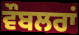
ਵੌਬਲਰਾਂ